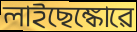
লাইছেঙ্কোৱে